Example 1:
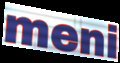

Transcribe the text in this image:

meni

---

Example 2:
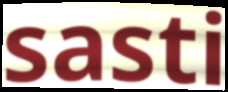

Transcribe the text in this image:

sasti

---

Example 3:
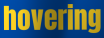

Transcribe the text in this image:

hovering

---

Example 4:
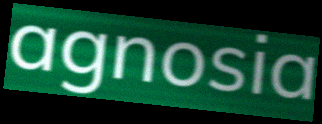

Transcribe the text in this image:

agnosia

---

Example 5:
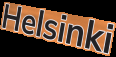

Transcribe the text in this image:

Helsinki